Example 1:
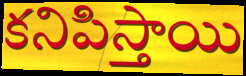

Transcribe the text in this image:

కనిపిస్తాయి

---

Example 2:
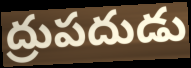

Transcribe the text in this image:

ద్రుపదుడు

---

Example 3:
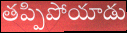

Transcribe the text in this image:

తప్పిపోయాడు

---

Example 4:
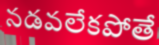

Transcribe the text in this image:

నడవలేకపోతే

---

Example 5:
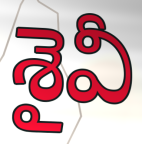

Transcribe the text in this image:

శైవీ